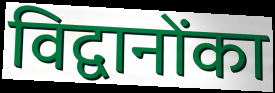
विद्वानोंका